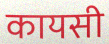
कायसी